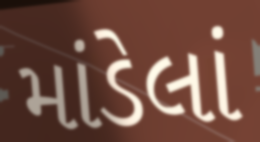
માંડેલાં